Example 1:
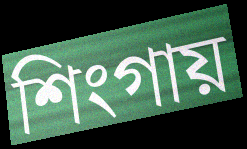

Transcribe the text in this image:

শিংগায়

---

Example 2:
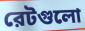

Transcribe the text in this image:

রেটগুলো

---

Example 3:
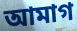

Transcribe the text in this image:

আমাগ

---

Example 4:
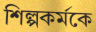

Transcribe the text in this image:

শিল্পকর্মকে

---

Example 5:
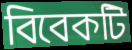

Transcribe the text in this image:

বিবেকটি